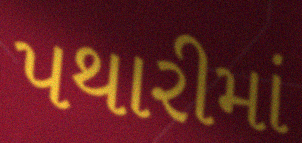
પથારીમાં